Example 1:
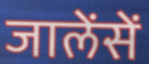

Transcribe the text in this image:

जालेंसें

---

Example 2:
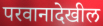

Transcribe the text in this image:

परवानादेखील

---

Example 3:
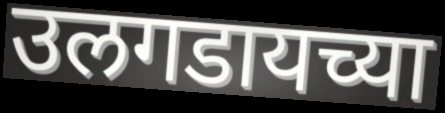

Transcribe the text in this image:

उलगडायच्या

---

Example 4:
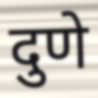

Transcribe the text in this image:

दुणे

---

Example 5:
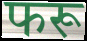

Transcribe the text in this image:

फरू